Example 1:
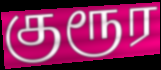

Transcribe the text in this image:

குரூர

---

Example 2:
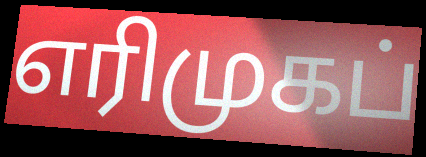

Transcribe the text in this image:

எரிமுகப்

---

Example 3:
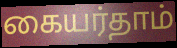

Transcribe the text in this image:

கையர்தாம்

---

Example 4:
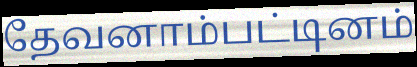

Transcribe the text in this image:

தேவனாம்பட்டினம்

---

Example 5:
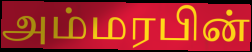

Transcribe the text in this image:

அம்மரபின்